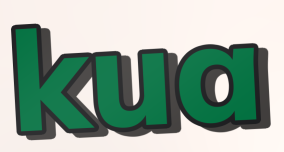
kua